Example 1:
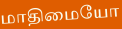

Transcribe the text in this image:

மாதிமையோ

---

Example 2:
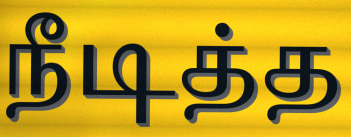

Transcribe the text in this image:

நீடித்த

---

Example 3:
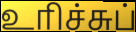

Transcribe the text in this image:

உரிச்சுப்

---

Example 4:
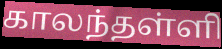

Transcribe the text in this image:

காலந்தள்ளி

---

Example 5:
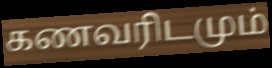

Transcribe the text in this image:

கணவரிடமும்